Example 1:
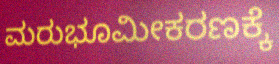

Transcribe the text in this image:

ಮರುಭೂಮೀಕರಣಕ್ಕೆ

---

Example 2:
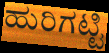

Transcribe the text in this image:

ಹುರಿಗಟ್ಟಿ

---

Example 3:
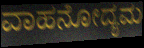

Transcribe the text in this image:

ವಾಹನೋದ್ಯಮ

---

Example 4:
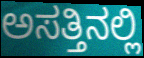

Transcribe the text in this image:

ಅಸತ್ತಿನಲ್ಲಿ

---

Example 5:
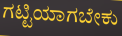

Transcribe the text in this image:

ಗಟ್ಟಿಯಾಗಬೇಕು